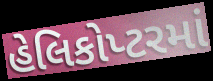
હેલિકોપ્ટરમાં